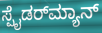
ಸ್ಪೈಡರ್‌ಮ್ಯಾನ್